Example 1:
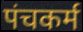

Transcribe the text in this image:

पंचकर्म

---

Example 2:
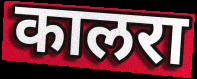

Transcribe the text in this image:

कालरा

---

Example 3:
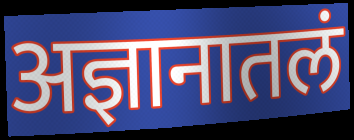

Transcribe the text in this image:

अज्ञानातलं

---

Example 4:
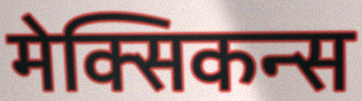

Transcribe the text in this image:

मेक्सिकन्स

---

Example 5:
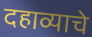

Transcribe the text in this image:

दहाव्याचे